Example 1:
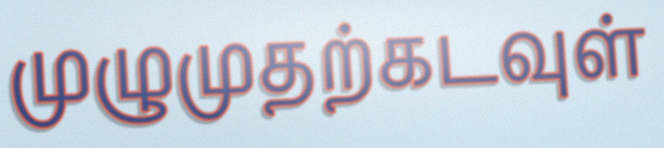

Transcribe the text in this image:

முழுமுதற்கடவுள்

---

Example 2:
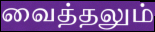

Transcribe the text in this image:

வைத்தலும்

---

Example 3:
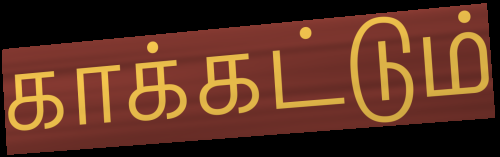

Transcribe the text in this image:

காக்கட்டும்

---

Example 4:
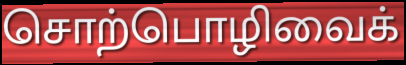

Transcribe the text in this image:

சொற்பொழிவைக்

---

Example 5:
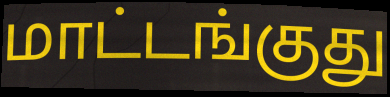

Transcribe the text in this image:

மாட்டங்குது